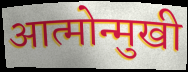
आत्मोन्मुखी